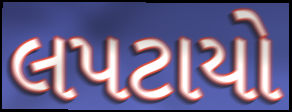
લપટાયો